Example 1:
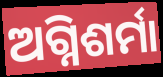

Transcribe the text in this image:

ଅଗ୍ନିଶର୍ମା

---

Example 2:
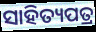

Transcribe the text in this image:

ସାହିତ୍ୟପତ୍ର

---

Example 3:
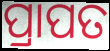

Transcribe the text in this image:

ପ୍ରାପତ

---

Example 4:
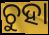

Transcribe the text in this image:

ଚୁହା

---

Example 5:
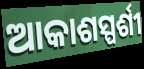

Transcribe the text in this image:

ଆକାଶସ୍ପର୍ଶୀ